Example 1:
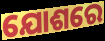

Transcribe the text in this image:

ଯୋଶରେ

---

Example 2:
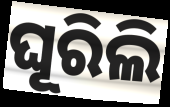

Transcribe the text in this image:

ଘୂରିଲି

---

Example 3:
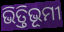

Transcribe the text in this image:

ଭିତ୍ତିଭୂମୀ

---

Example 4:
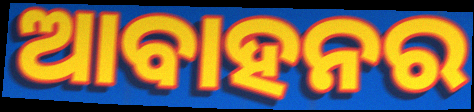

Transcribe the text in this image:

ଆବାହନର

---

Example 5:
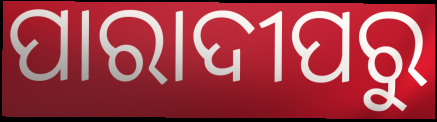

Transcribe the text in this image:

ପାରାଦୀପରୁ